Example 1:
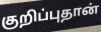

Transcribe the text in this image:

குறிப்புதான்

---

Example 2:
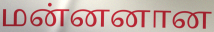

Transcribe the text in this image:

மன்னனான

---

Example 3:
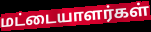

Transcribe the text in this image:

மட்டையாளர்கள்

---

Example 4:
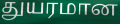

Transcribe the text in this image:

துயரமான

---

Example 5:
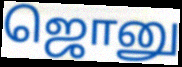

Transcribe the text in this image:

ஜொனு